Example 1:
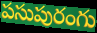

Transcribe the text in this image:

పసుపురంగు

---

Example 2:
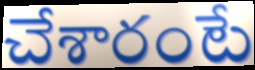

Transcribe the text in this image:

చేశారంటే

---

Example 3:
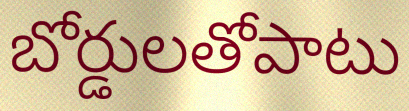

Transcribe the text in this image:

బోర్డులతోపాటు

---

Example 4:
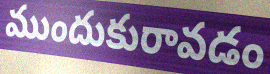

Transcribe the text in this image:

ముందుకురావడం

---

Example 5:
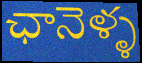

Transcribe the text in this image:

ఛానెళ్ళ